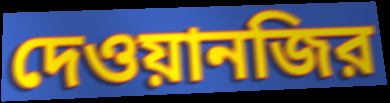
দেওয়ানজির